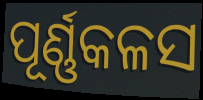
ପୂର୍ଣ୍ଣକଳସ